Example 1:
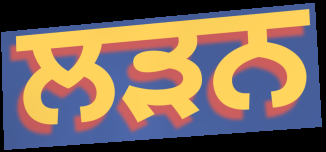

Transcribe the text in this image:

ਲਡ਼ਨ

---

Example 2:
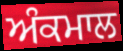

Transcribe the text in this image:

ਅੰਕਮਾਲ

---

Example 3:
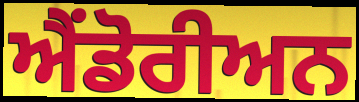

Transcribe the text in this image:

ਐਂਡੋਰੀਅਨ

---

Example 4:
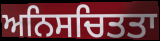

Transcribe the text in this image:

ਅਨਿਸਚਿਤਤਾ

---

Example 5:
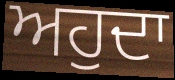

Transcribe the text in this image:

ਅਹੁਦਾ